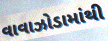
વાવાઝોડામાંથી